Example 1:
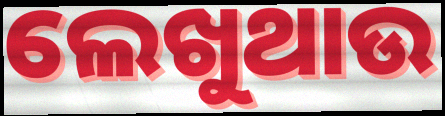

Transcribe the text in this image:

ଲେଖୁଥାଉ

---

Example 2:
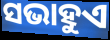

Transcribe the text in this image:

ସଭାହୁଏ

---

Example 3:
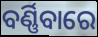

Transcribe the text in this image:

ବର୍ଣ୍ଣିବାରେ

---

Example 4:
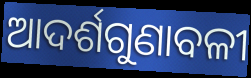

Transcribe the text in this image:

ଆଦର୍ଶଗୁଣାବଳୀ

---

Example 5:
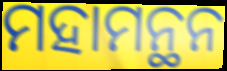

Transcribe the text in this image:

ମହାମନ୍ଥନ